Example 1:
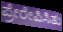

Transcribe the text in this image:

ಪ್ರೇರೇಪಿಸಿತು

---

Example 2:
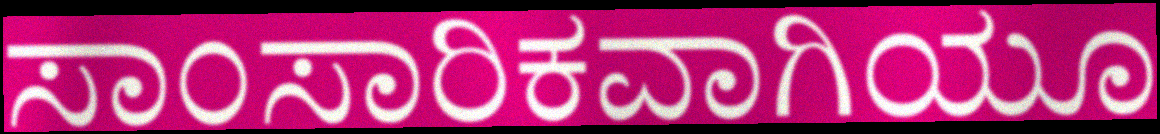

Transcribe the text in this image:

ಸಾಂಸಾರಿಕವಾಗಿಯೂ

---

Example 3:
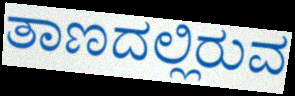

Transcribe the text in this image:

ತಾಣದಲ್ಲಿರುವ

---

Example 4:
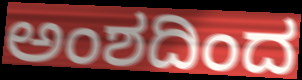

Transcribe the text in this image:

ಅಂಶದಿಂದ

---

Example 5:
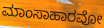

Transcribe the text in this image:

ಮಾಂಸಾಹಾರವೋ